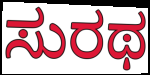
ಸುರಥ